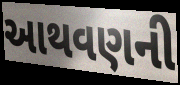
આથવણની